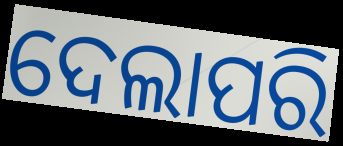
ଦେଲାପରି